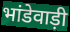
भांडेवाड़ी